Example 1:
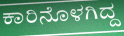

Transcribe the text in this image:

ಕಾರಿನೊಳಗಿದ್ದ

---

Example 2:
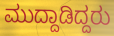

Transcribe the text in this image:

ಮುದ್ದಾಡಿದ್ದರು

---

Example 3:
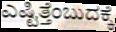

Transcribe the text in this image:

ಎಷ್ಟಿತ್ತೆಂಬುದಕ್ಕೆ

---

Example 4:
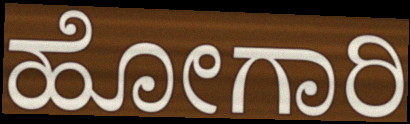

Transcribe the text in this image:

ಹೋಗಾರಿ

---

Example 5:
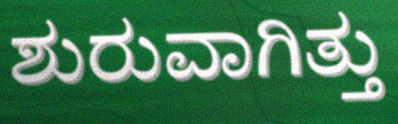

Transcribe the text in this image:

ಶುರುವಾಗಿತ್ತು